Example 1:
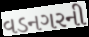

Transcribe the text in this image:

વડનગરની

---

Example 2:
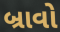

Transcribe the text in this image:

બ્રાવો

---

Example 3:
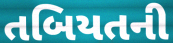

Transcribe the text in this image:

તબિયતની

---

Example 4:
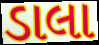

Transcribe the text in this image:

ડાલા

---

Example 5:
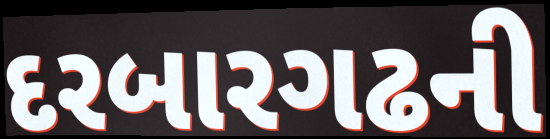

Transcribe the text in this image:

દરબારગઢની